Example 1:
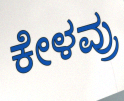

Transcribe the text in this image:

ಕೇಳವ್ರು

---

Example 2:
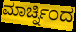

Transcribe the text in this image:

ಮಾರ್ಚ್ನಿಂದ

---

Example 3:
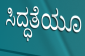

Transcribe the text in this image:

ಸಿದ್ಧತೆಯೂ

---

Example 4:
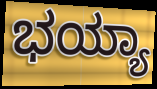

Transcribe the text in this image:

ಭಯ್ಯಾ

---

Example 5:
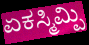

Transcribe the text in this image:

ಏಕಸ್ಮಿಮ್ಪಿ